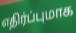
எதிர்ப்புமாக